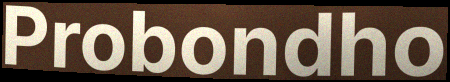
Probondho